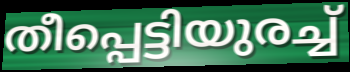
തീപ്പെട്ടിയുരച്ച്